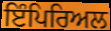
ਇੰਪਿਰਿਅਲ